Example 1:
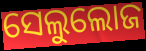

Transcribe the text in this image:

ସେଲୁଲୋଜ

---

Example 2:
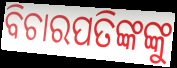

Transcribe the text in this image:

ବିଚାରପତିଙ୍କଙ୍କୁ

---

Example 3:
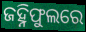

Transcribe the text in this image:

ଜହ୍ନିଫୁଲରେ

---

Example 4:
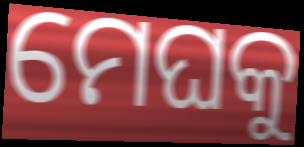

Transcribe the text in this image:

ମେଘକୁ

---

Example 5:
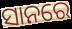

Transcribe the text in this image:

ସାନରେ